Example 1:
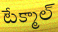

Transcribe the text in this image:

టేక్మాల్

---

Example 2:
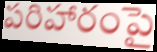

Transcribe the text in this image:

పరిహారంపై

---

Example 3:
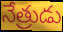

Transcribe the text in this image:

నేత్రుడు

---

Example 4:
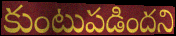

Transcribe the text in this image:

కుంటుపడిందని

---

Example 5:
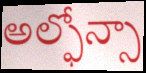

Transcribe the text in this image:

అల్ఫోన్సా